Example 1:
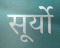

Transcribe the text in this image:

सूर्यो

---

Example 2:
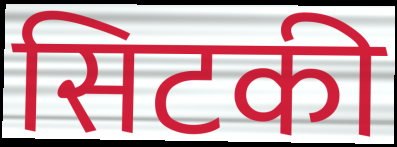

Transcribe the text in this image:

सिटकी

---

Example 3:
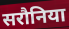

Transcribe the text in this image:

सरौनिया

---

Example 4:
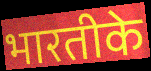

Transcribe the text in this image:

भारतीके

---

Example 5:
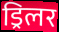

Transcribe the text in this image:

ड्रिलर